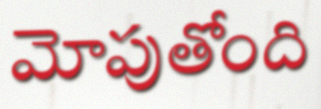
మోపుతోంది